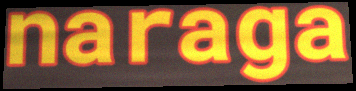
naraga